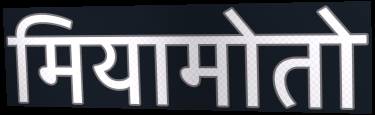
मियामोतो